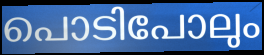
പൊടിപോലും